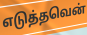
எடுத்தவென்